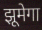
झूमेगा